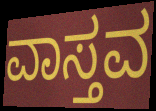
ವಾಸ್ತವ